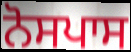
ਨੋਸਪਾਸ